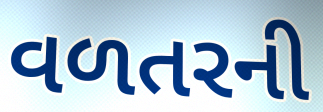
વળતરની